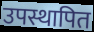
उपस्थापित